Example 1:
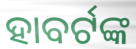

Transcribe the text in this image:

ହାବର୍ଟଙ୍କ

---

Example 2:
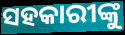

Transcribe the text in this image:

ସହକାରୀଙ୍କୁ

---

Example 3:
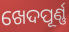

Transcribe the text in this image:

ଖେଦପୂର୍ଣ୍ଣ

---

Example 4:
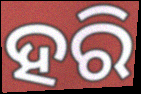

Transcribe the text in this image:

ହରି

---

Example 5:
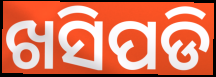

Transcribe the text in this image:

ଖସିପଡି